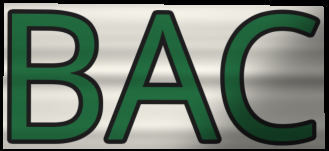
BAC